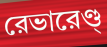
রেভারেণ্ড্